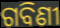
ଗବିଣୀ